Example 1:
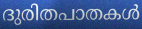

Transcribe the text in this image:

ദുരിതപാതകൾ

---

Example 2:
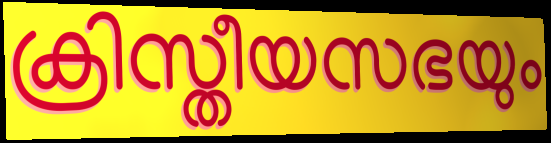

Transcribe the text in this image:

ക്രിസ്തീയസഭയും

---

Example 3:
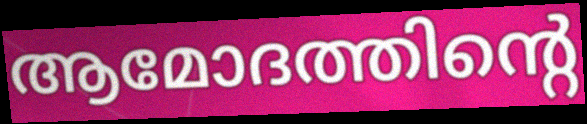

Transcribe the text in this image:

ആമോദത്തിന്റെ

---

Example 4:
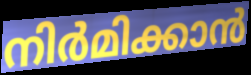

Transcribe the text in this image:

നിർമിക്കാൻ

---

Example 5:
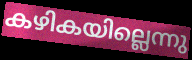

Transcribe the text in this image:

കഴികയില്ലെന്നു